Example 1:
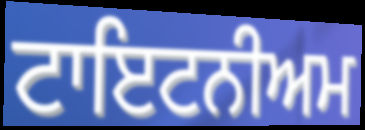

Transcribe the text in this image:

ਟਾਇਟਨੀਅਮ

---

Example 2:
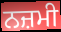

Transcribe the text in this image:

ਨਜ਼ਮੀ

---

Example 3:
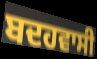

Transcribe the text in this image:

ਬਦਹਵਾਸੀ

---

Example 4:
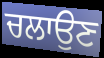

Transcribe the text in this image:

ਚਲਾਉਣ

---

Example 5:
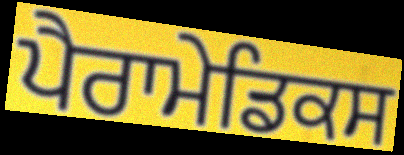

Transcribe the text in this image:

ਪੈਰਾਮੇਡਿਕਸ